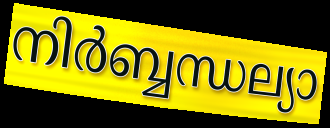
നിർബ്ബന്ധല്യാ